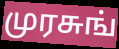
முரசுங்